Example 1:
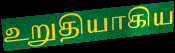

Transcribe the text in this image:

உறுதியாகிய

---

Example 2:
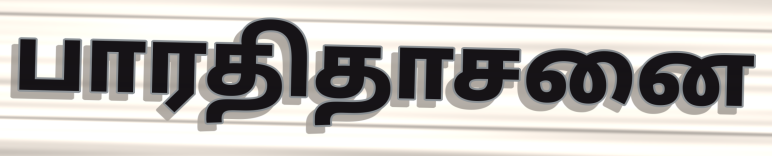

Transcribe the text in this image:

பாரதிதாசனை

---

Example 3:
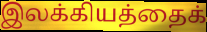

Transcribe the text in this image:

இலக்கியத்தைக்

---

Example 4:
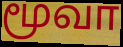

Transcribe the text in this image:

மூவா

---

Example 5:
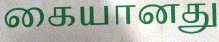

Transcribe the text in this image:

கையானது